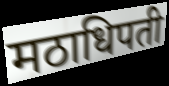
मठाधिपती